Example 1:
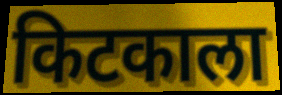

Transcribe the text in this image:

किटकाला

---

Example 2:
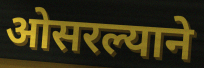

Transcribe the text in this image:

ओसरल्याने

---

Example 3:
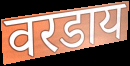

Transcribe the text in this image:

वरडाय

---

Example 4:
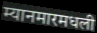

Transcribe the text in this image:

म्यानमारमधली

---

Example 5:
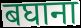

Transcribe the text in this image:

बघाना